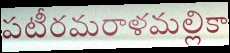
పటీరమరాళమల్లికా